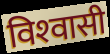
विश्‍वासी